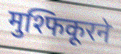
मुश्फिकूरने